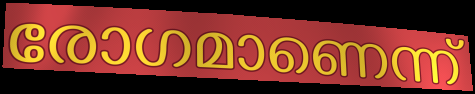
രോഗമാണെന്ന്